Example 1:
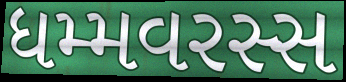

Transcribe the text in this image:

ધમ્મવરસ્સ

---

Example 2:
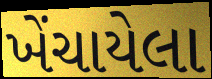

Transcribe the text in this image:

ખેંચાયેલા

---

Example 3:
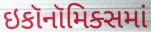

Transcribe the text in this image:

ઇકૉનૉમિક્સમાં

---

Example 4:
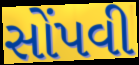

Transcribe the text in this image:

સોંપવી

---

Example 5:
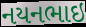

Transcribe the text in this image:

નયનભાઇ